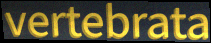
vertebrata